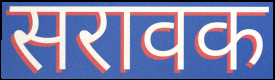
सरावक